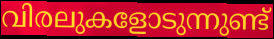
വിരലുകളോടുന്നുണ്ട്